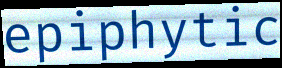
epiphytic